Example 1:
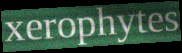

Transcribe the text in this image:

xerophytes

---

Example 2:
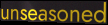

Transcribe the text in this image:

unseasoned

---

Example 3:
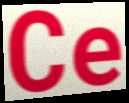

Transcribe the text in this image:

Ce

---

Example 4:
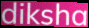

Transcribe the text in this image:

diksha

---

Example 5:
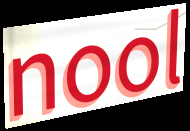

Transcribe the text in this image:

nool